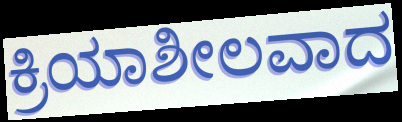
ಕ್ರಿಯಾಶೀಲವಾದ